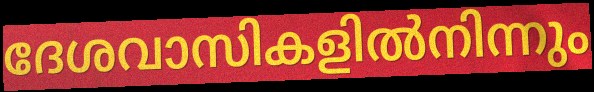
ദേശവാസികളിൽനിന്നും